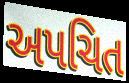
અપચિત